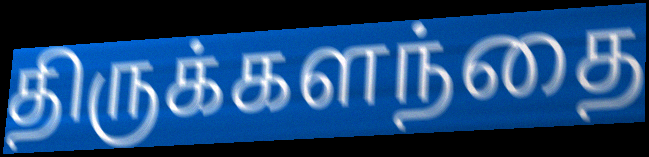
திருக்களந்தை